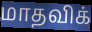
மாதவிக்